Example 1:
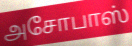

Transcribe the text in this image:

அசோபாஸ்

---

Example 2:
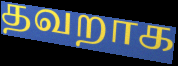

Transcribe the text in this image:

தவறாக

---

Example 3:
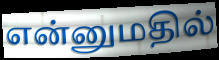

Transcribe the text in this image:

என்னுமதில்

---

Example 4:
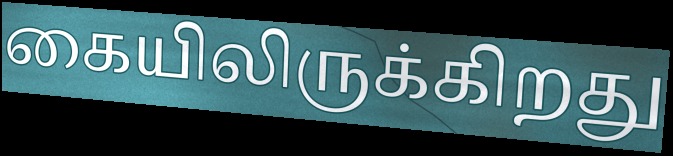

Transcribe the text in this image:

கையிலிருக்கிறது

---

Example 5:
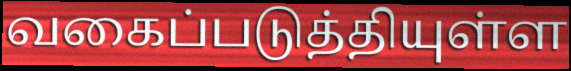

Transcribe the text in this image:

வகைப்படுத்தியுள்ள